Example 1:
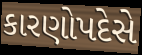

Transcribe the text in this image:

કારણોપદેસે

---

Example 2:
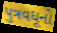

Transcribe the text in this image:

પુત્રવધૂનો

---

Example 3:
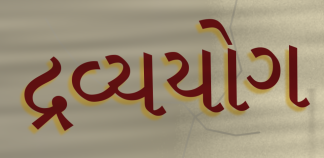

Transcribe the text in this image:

દ્રવ્યયોગ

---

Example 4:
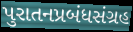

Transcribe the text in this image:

પુરાતનપ્રબંધસંગ્રહ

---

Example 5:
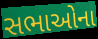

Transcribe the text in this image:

સભાઓના